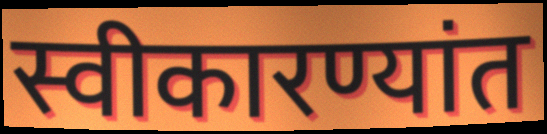
स्वीकारण्यांत